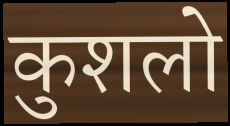
कुशलो